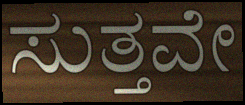
ಸುತ್ತವೇ